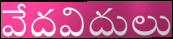
వేదవిదులు